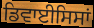
ਡਿਵਾਈਸਿਸਾਂ